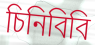
চিনিবিবি